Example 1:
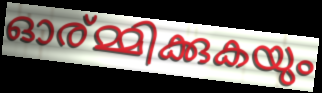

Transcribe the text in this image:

ഓര്മ്മിക്കുകയും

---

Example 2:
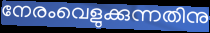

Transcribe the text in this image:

നേരംവെളുക്കുന്നതിനു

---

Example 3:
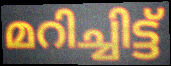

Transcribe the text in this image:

മറിച്ചിട്ട്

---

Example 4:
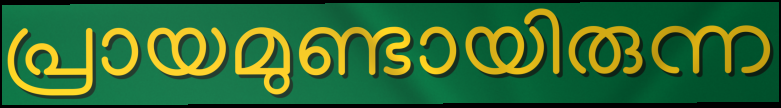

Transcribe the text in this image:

പ്രായമുണ്ടായിരുന്ന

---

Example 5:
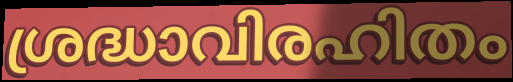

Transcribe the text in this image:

ശ്രദ്ധാവിരഹിതം